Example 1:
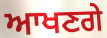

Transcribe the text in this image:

ਆਖਣਗੇ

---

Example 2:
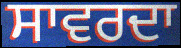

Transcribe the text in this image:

ਸਾਵਰਦਾ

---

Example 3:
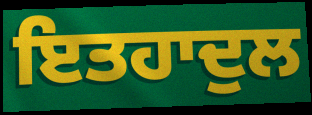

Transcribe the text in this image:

ਇਤਹਾਦੁਲ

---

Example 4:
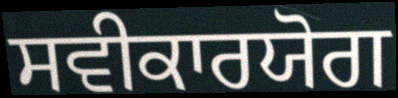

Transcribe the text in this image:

ਸਵੀਕਾਰਯੋਗ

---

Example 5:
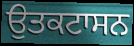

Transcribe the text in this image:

ਉਤਕਟਾਸਨ